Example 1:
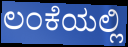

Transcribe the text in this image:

ಲಂಕೆಯಲ್ಲಿ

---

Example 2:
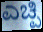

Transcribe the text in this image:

ಎಚ್ಪಿ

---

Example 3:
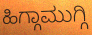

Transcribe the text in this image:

ಹಿಗ್ಗಾಮುಗ್ಗಿ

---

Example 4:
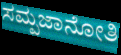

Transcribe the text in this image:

ಸಮ್ಪಜಾನೋತಿ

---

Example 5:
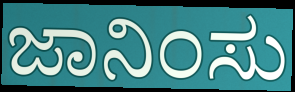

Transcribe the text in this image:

ಜಾನಿಂಸು